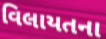
વિલાયતના